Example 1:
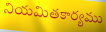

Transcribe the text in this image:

నియమితకార్యము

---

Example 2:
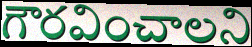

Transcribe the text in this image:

గౌరవించాలని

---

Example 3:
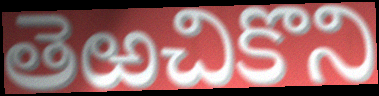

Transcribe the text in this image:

తెఱచికొని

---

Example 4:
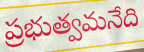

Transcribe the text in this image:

ప్రభుత్వమనేది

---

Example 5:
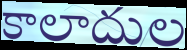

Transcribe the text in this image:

కాలాదుల